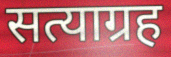
सत्याग्रह